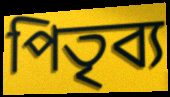
পিতৃব্য